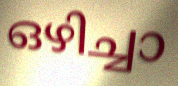
ഒഴിച്ചാ